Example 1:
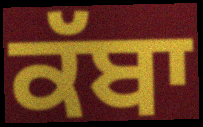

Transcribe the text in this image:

ਕੱਬਾ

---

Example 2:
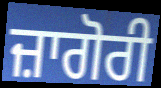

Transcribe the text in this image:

ਜ਼ਾਗੋਰੀ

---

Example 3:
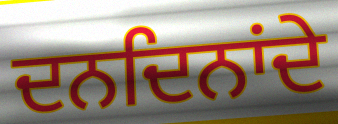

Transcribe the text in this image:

ਦਨਦਿਨਾਂਦੇ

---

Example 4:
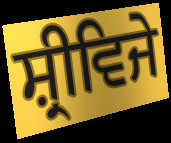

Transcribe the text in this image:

ਸ਼੍ਰੀਵਿਜੇ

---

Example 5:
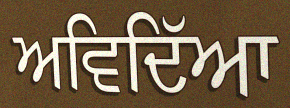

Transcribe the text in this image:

ਅਵਿਦਿੱਆ